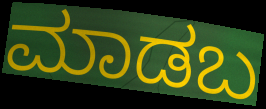
ಮಾಡಬ